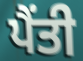
ਪੈਂਤੀ